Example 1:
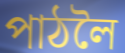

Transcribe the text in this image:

পাঠলৈ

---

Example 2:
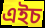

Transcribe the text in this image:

এইচ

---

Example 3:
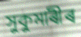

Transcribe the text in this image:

সুকুমাৰীৰ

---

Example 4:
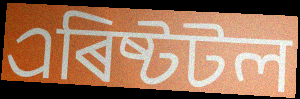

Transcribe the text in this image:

এৰিষ্টটল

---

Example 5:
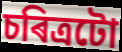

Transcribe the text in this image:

চৰিত্ৰটো